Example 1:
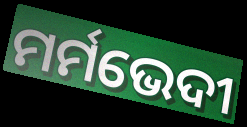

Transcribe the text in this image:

ମର୍ମଭେଦୀ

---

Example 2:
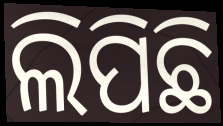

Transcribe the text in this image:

ଲିପିଛି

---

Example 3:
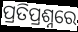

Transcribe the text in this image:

ପ୍ରତିପ୍ରଶ୍ନରେ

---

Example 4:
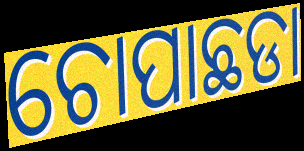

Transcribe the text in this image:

ଚୋପାଛଡା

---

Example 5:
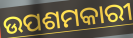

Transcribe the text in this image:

ଉପଶମକାରୀ